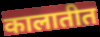
कालातीत